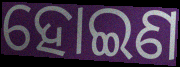
ହୋଇଣ